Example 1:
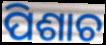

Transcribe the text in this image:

ପିଶାଚ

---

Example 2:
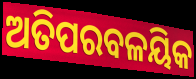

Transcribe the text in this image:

ଅତିପରବଳୟିକ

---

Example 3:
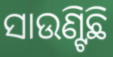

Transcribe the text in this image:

ସାଉଣ୍ଟିଛି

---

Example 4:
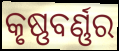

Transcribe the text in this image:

କୃଷ୍ଣବର୍ଣ୍ଣର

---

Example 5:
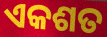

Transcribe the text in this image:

ଏକଶତ